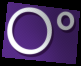
ଠଂ